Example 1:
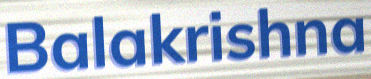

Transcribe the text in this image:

Balakrishna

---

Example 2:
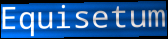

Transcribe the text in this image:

Equisetum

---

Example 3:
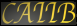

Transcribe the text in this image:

CAIIB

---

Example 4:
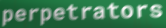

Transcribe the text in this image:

perpetrators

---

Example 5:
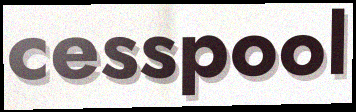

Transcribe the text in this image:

cesspool